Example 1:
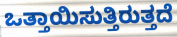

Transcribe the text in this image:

ಒತ್ತಾಯಿಸುತ್ತಿರುತ್ತದೆ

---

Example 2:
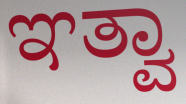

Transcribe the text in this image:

ಞತ್ವಾ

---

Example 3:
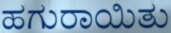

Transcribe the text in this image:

ಹಗುರಾಯಿತು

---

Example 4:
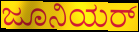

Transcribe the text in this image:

ಜೂನಿಯರ್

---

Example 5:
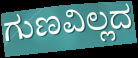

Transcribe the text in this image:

ಗುಣವಿಲ್ಲದ